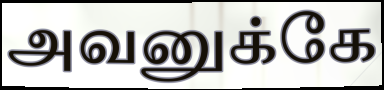
அவனுக்கே